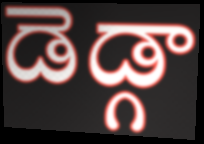
డెడ్గా